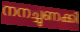
നനച്ചുണക്കി